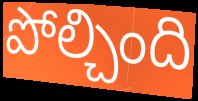
పోల్చింది